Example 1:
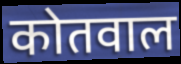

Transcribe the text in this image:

कोतवाल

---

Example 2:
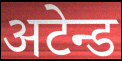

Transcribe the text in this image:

अटेन्ड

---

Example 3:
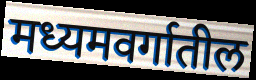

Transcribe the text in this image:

मध्यमवर्गातील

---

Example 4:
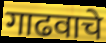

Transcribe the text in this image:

गाढवाचे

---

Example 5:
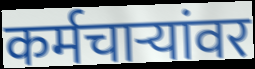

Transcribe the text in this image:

कर्मचार्‍यांवर